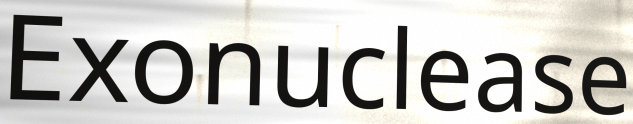
Exonuclease